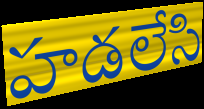
హడలేసి